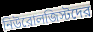
নিউরোলজিস্টদের